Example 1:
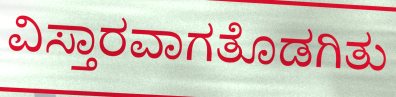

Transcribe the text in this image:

ವಿಸ್ತಾರವಾಗತೊಡಗಿತು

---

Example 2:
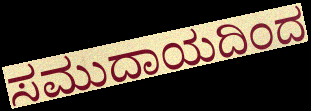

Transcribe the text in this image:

ಸಮುದಾಯದಿಂದ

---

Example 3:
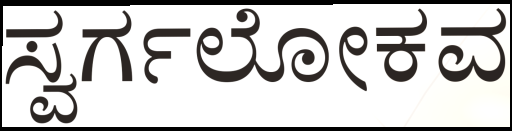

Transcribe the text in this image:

ಸ್ವರ್ಗಲೋಕವ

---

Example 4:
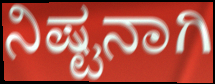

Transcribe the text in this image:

ನಿಷ್ಟನಾಗಿ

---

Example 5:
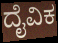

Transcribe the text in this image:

ದೈವಿಕ